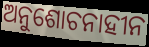
ଅନୁଶୋଚନାହୀନ